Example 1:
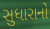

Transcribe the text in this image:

સુધારાનો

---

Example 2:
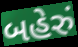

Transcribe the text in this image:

બહેરું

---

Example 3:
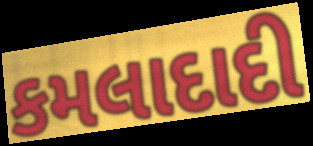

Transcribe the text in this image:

કમલાદાદી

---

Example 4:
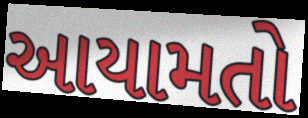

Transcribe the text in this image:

આયામતો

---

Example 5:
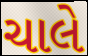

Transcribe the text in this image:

ચાલે